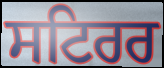
ਸਟਿਰਰ